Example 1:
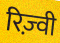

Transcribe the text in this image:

रिज़्वी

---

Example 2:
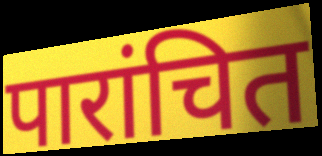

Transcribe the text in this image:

पारांचित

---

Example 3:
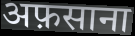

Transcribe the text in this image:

अफ़साना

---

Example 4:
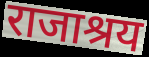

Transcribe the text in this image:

राजाश्रय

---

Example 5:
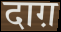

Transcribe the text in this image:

दाग़